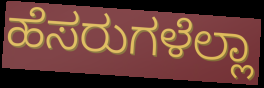
ಹೆಸರುಗಳೆಲ್ಲಾ